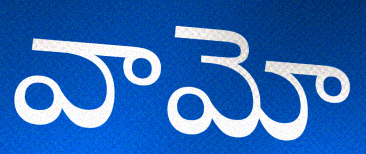
వామో